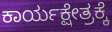
ಕಾರ್ಯಕ್ಷೇತ್ರಕ್ಕೆ